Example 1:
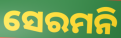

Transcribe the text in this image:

ସେରମନି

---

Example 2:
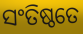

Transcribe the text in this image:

ସଂତିଷ୍ଠତେ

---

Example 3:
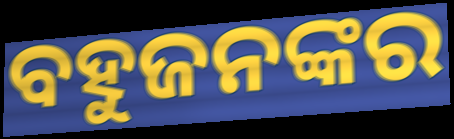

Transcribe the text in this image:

ବହୁଜନଙ୍କର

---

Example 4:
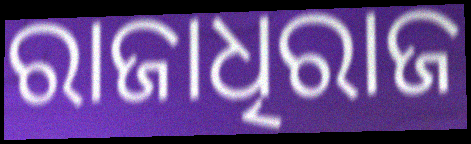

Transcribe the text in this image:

ରାଜାଧିରାଜ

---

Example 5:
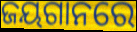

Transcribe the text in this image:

ଜୟଗାନରେ